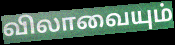
விலாவையும்